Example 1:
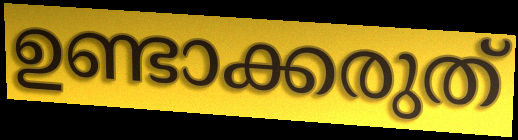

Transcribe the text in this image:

ഉണ്ടാക്കരുത്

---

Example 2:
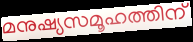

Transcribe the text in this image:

മനുഷ്യസമൂഹത്തിന്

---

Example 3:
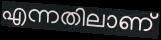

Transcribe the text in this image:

എന്നതിലാണ്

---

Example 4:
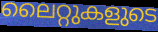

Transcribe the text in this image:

ലൈറ്റുകളുടെ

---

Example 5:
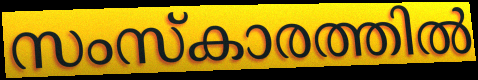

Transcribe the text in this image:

സംസ്കാരത്തിൽ